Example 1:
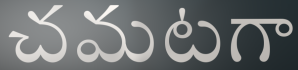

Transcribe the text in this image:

చమటగా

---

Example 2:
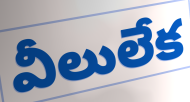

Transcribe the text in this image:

వీలులేక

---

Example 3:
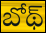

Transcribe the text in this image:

బోథ్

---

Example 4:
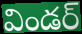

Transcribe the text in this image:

విండర్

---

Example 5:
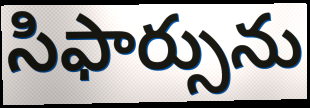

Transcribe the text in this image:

సిఫార్సును